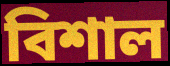
বিশাল